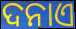
ଦନାଏ